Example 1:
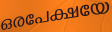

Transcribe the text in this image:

ഒരപേക്ഷയേ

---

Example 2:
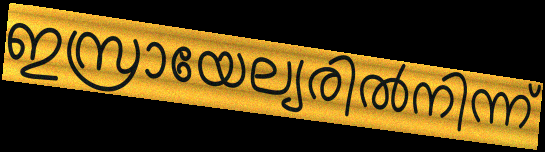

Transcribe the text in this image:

ഇസ്രായേല്യരിൽനിന്ന്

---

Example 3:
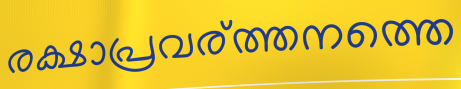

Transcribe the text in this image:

രക്ഷാപ്രവര്ത്തനത്തെ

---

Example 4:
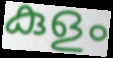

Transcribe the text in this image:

കുളം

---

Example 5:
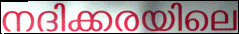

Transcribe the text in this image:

നദിക്കരയിലെ